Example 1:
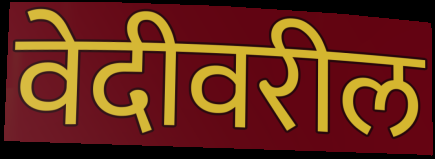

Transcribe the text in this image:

वेदीवरील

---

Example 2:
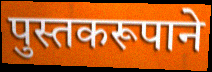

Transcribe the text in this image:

पुस्तकरूपाने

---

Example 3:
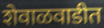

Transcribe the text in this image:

शेवाळवाडीत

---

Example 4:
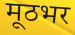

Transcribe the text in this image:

मूठभर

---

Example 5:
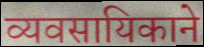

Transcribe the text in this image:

व्यवसायिकाने